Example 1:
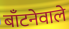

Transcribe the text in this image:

बाँटनेवाले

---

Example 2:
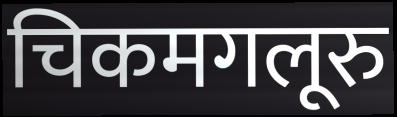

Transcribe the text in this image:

चिकमगलूरु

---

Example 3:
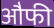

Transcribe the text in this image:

औफी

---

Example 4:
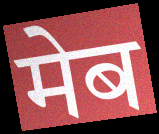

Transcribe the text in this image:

मेब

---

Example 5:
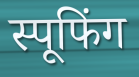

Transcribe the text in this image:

स्पूफिंग